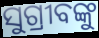
ସୁଗ୍ରୀବଙ୍କୁ